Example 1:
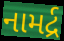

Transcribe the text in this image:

નામર્દ્ર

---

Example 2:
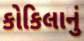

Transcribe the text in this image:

કોકિલાનું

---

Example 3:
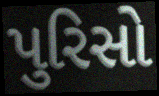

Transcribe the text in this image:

પુરિસો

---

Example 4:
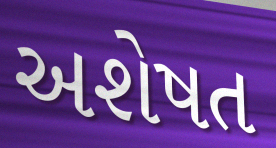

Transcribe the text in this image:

અશેષત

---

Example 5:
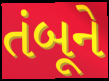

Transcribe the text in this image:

તંબૂને